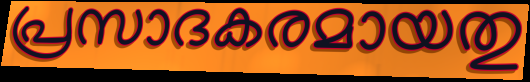
പ്രസാദകരമായതു